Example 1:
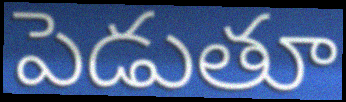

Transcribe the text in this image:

పెడుతూ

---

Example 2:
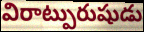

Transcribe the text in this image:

విరాట్పురుషుడు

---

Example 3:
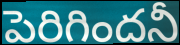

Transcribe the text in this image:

పెరిగిందనీ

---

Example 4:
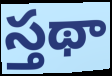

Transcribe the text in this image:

స్తథా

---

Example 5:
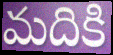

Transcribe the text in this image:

మదికి